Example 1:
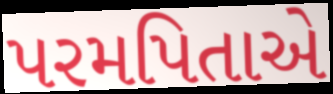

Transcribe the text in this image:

પરમપિતાએ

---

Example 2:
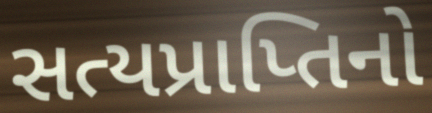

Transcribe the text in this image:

સત્યપ્રાપ્તિનો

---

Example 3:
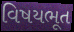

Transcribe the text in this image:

વિષયભૂત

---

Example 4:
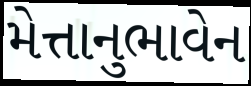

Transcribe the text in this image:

મેત્તાનુભાવેન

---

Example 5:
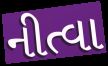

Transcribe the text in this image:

નીત્વા